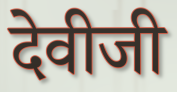
देवीजी